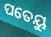
ପତେୟୁ